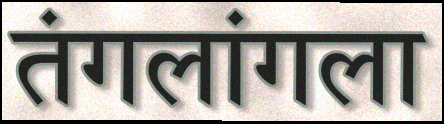
तंगलांगला